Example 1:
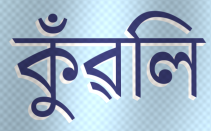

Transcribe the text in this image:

কুঁৱলি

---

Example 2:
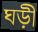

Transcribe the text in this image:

ঘড়ী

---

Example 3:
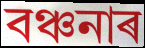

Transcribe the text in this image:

বঞ্চনাৰ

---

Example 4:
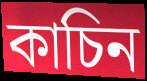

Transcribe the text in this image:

কাচিন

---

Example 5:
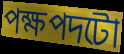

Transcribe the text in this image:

পক্ষপদটো